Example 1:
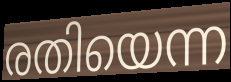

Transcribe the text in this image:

രതിയെന്ന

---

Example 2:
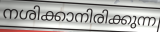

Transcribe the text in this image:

നശിക്കാനിരിക്കുന്ന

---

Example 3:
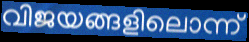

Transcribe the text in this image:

വിജയങ്ങളിലൊന്ന്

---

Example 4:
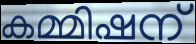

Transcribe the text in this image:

കമ്മിഷന്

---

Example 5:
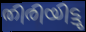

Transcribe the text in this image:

തിരിയിട്ടു